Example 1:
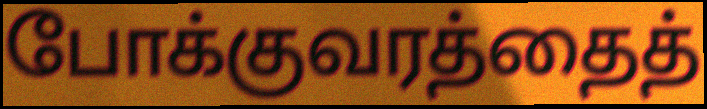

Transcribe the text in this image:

போக்குவரத்தைத்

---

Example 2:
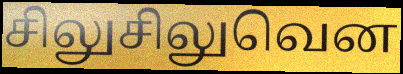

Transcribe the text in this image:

சிலுசிலுவென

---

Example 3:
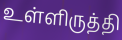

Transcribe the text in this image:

உள்ளிருத்தி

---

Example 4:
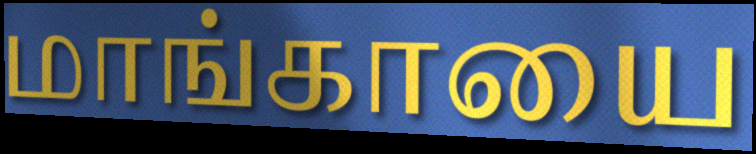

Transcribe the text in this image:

மாங்காயை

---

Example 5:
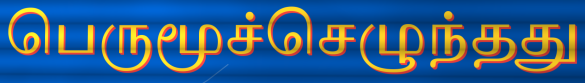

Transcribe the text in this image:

பெருமூச்செழுந்தது